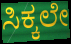
ಸಿಕ್ಕಲೇ